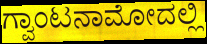
ಗ್ವಾಂಟನಾಮೋದಲ್ಲಿ